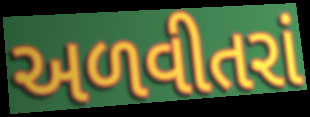
અળવીતરાં